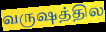
வருஷத்தில